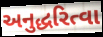
અનુદ્ધરિત્વા